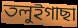
তলুইগাছা